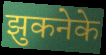
झुकनेके